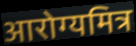
आरोग्यमित्र